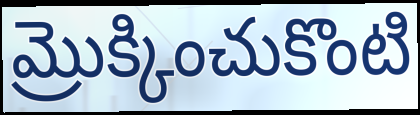
మ్రొక్కించుకొంటి